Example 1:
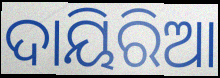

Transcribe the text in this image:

ଦାୟିରିଆ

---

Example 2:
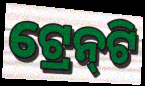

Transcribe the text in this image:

ଟ୍ରେନ୍‌ଟି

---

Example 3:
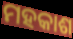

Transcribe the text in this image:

ମହକାଶ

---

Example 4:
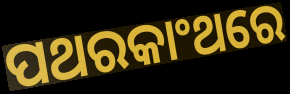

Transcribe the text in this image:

ପଥରକାଂଥରେ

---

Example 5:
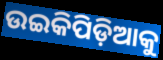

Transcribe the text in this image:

ଉଇକିପିଡ଼ିଆକୁ